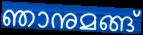
ഞാനുമങ്ങ്